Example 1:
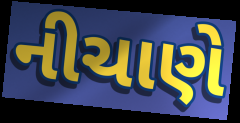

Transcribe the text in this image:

નીચાણે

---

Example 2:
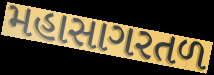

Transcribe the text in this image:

મહાસાગરતળ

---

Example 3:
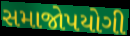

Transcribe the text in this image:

સમાજોપયોગી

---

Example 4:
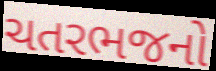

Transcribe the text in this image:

ચતરભજનો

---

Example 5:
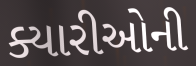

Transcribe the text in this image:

ક્યારીઓની